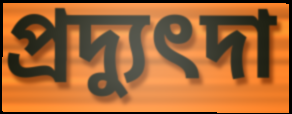
প্রদ্যুৎদা